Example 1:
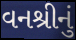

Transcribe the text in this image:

વનશ્રીનું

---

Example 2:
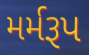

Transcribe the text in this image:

મર્મરૂપ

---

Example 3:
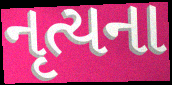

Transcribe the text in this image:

નૃત્યના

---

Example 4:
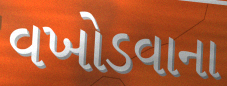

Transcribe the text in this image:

વખોડવાના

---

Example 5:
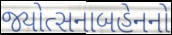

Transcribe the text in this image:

જ્યોત્સનાબહેનનો